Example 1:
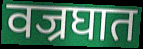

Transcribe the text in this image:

वज्रघात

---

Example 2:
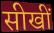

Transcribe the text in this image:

सीखीं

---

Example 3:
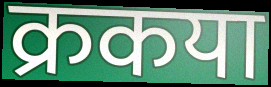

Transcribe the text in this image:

क्रकया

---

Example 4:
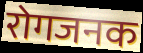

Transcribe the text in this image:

रोगजनक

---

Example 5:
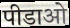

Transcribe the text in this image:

पीडाओ